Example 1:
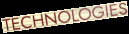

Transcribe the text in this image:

TECHNOLOGIES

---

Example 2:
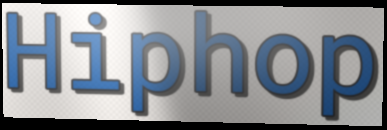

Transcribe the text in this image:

Hiphop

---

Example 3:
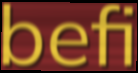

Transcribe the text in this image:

befi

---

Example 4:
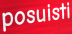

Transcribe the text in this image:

posuisti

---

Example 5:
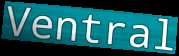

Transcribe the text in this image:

Ventral